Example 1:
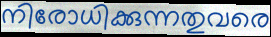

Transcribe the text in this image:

നിരോധിക്കുന്നതുവരെ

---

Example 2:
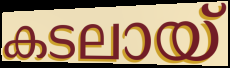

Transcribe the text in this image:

കടലായ്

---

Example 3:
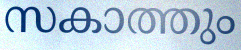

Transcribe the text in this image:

സകാത്തും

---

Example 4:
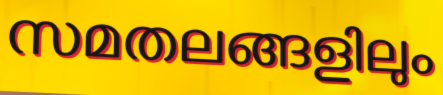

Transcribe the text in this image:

സമതലങ്ങളിലും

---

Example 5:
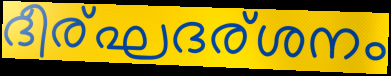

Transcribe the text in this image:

ദീര്ഘദര്ശനം